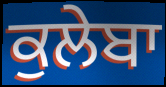
ਕੁਲੇਬਾ